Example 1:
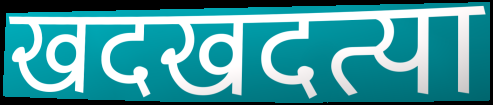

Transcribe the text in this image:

खदखदत्या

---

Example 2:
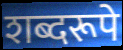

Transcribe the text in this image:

शब्दरूपे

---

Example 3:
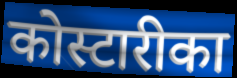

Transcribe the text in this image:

कोस्टारीका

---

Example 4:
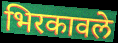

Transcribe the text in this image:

भिरकावले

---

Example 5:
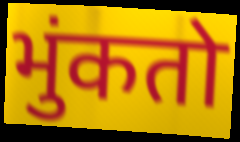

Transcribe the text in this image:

भुंकतो